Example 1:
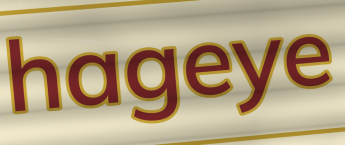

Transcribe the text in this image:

hageye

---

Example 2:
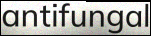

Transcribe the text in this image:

antifungal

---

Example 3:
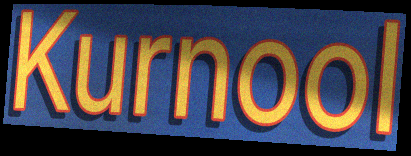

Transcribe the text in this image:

Kurnool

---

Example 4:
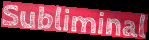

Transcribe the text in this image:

Subliminal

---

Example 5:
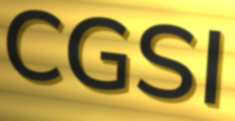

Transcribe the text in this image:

CGSI